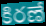
కిరణే